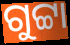
ଗୁଟ୍ଟା